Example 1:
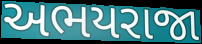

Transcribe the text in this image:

અભયરાજા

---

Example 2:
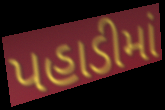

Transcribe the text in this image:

પહાડીમાં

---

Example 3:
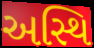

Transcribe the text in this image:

અસ્થિ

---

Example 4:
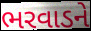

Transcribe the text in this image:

ભરવાડને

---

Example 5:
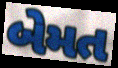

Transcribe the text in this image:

બેમત